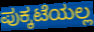
ಪುಕ್ಕಟೆಯಲ್ಲ